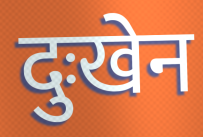
दुःखेन